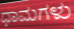
ಧಾಮಗಳು